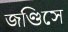
জণ্ডিসে